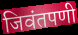
जिवंतपणी